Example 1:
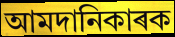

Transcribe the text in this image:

আমদানিকাৰক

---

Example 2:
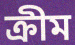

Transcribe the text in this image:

ক্ৰীম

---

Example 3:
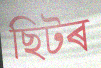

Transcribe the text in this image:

ছিটৰ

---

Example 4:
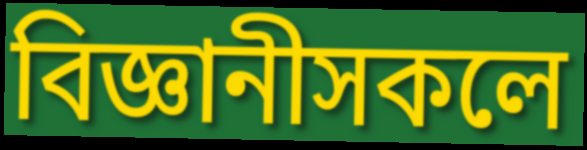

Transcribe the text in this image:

বিজ্ঞানীসকলে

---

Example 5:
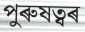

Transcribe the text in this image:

পুৰুষত্বৰ